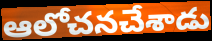
ఆలోచనచేశాడు